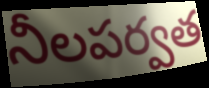
నీలపర్వత